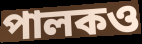
পালকও